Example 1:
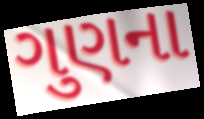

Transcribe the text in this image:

ગુણના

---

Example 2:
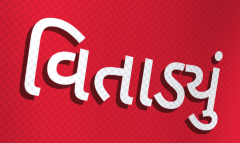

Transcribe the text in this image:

વિતાડ્યું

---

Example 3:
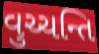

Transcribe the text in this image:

વુચ્ચન્તિ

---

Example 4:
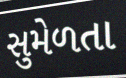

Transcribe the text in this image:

સુમેળતા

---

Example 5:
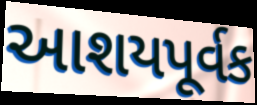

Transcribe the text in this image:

આશયપૂર્વક